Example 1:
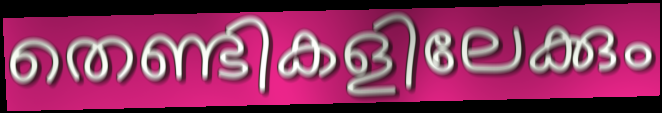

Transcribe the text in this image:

തെണ്ടികളിലേക്കും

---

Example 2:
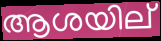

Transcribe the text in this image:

ആശയില്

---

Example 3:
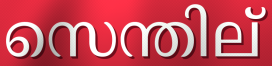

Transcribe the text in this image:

സെന്തില്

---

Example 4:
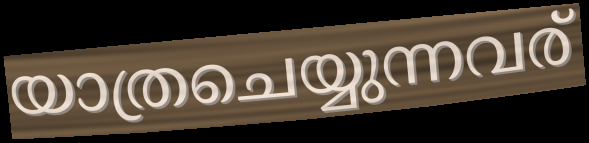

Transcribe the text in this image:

യാത്രചെയ്യുന്നവര്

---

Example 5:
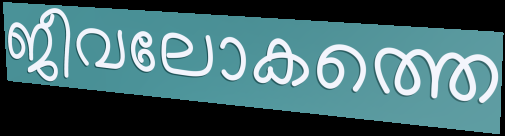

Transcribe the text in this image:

ജീവലോകത്തെ